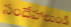
సందేహాలుండి